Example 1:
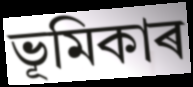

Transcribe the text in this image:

ভূমিকাৰ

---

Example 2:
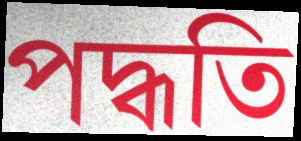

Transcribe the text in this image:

পদ্ধতি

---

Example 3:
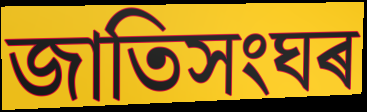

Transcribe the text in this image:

জাতিসংঘৰ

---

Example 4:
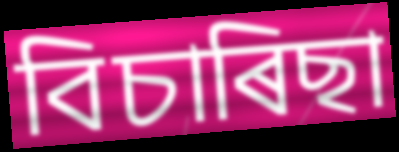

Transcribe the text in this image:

বিচাৰিছা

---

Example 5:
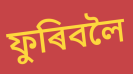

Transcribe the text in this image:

ফুৰিবলৈ